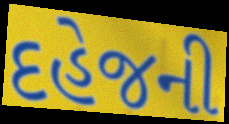
દહેજની